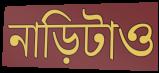
নাড়িটাও